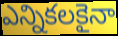
ఎన్నికలకైనా